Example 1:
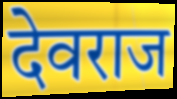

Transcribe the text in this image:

देवराज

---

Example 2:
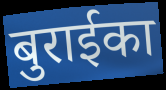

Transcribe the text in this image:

बुराईका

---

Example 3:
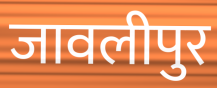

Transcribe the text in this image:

जावलीपुर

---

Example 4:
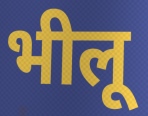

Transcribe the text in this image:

भीलू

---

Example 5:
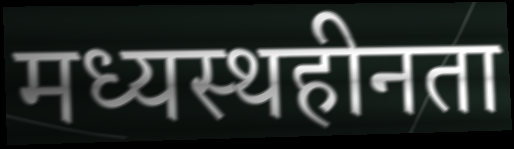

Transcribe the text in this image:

मध्यस्थहीनता